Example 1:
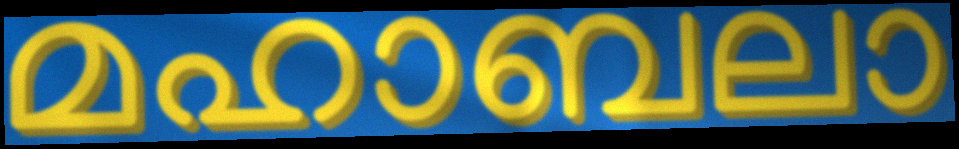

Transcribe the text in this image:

മഹാബലാ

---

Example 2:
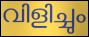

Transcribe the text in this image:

വിളിച്ചും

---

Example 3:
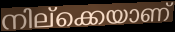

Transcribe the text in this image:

നില്ക്കെയാണ്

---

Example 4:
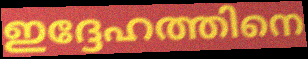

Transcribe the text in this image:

ഇദ്ദേഹത്തിനെ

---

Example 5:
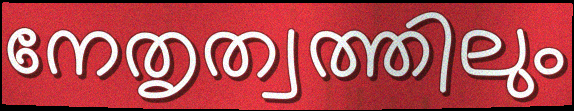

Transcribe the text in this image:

നേതൃത്വത്തിലും